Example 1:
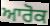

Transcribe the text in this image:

ਆਰੋਕ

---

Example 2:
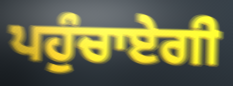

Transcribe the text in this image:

ਪਹੁੰਚਾਏਗੀ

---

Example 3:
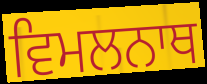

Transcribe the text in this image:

ਵਿਮਲਨਾਥ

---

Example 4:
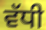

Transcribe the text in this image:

ਵੱਧੀ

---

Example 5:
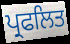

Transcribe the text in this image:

ਪ੍ਰਫਲਿਤ